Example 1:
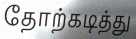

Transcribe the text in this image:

தோற்கடித்து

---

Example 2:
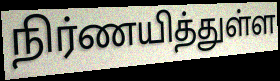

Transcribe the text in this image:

நிர்ணயித்துள்ள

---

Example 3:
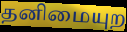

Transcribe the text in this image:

தனிமையுற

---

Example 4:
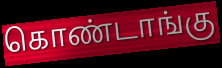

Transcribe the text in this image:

கொண்டாங்கு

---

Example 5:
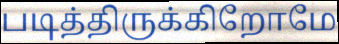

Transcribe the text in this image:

படித்திருக்கிறோமே